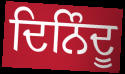
ਦਿਨਿੰਦੂ